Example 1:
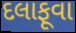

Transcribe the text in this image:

દલાફૂવા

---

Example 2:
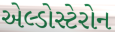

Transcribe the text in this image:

એલ્ડોસ્ટેરોન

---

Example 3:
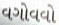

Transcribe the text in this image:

વગોવવો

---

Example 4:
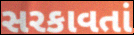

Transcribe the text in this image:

સરકાવતાં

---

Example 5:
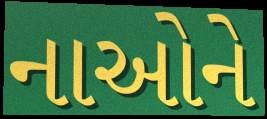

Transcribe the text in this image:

નાઓને